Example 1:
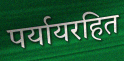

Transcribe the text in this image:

पर्यायरहित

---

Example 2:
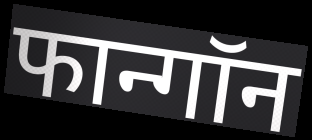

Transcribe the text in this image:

फान्गॉन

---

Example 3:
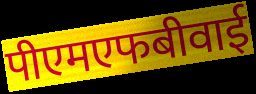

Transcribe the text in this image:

पीएमएफबीवाई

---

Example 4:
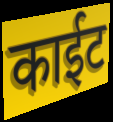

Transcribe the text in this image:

काईट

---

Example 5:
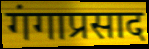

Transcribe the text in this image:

गंगाप्रसाद